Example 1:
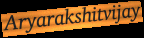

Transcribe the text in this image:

Aryarakshitvijay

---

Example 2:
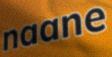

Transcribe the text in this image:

naane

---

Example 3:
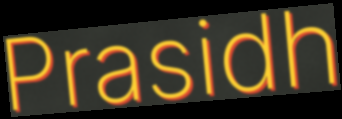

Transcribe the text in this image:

Prasidh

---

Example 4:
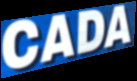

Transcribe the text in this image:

CADA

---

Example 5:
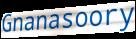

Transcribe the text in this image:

Gnanasoory